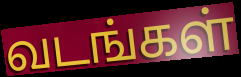
வடங்கள்